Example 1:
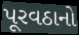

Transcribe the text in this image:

પૂરવઠાનો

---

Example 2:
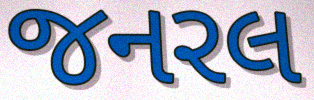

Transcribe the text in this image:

જનરલ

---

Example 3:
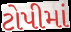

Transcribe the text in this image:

ટોપીમાં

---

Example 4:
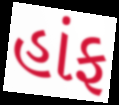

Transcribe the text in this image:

હાંફ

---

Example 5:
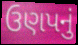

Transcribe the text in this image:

ઉણપનું